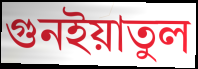
গুনইয়াতুল